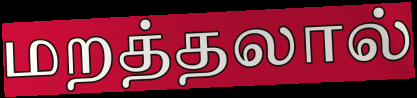
மறத்தலால்